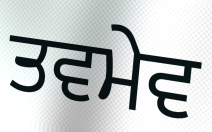
ਤਵਮੇਵ